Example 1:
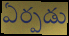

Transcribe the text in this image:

ఏర్పడు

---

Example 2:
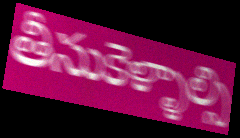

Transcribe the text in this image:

తీసుకెళ్ళాల్సి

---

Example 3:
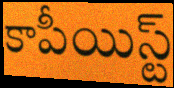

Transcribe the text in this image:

కాపీయిస్ట్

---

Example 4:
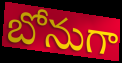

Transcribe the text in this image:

బోనుగా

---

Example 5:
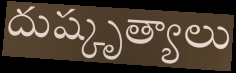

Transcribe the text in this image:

దుష్కృత్యాలు